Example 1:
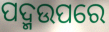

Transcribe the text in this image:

ପଦ୍ମଉପରେ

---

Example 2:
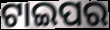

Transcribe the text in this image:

ଟାଇପର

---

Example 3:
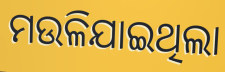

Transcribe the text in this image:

ମଉଳିଯାଇଥିଲା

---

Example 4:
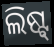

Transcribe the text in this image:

ଲିଷ୍ଟ୍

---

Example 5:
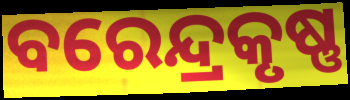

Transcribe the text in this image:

ବରେନ୍ଦ୍ରକୃଷ୍ଣ